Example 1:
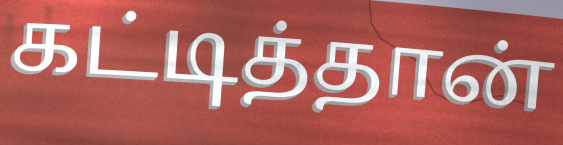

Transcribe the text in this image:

கட்டித்தான்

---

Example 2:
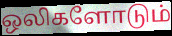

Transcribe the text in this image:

ஒலிகளோடும்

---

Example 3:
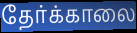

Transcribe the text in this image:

தேர்க்காலை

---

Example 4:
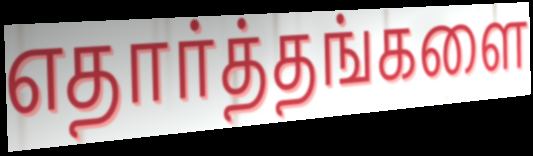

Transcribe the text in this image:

எதார்த்தங்களை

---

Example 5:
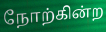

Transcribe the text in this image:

நோற்கின்ற